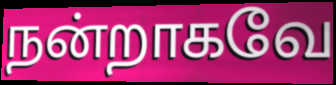
நன்றாகவே